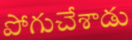
పోగుచేశాడు